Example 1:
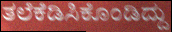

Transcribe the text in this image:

ತಲೆಕೆಡಿಸಿಕೊಂಡಿದ್ದು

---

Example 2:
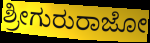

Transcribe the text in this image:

ಶ್ರೀಗುರುರಾಜೋ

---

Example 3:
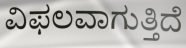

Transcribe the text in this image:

ವಿಫಲವಾಗುತ್ತಿದೆ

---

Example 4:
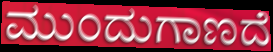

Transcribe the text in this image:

ಮುಂದುಗಾಣದೆ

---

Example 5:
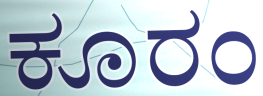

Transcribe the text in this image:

ಕೂರಂ